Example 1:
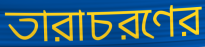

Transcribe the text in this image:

তারাচরণের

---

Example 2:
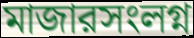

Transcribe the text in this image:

মাজারসংলগ্ন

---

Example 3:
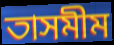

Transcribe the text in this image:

তাসমীম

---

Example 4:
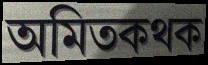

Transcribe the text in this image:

অমিতকথক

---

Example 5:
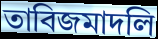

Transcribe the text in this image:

তাবিজমাদলি